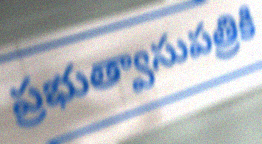
ప్రభుత్వాసుపత్రికి